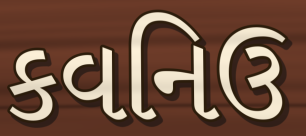
કવનિઉ